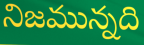
నిజమున్నది